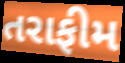
તરાફીમ